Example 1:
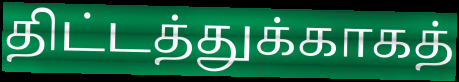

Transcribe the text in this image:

திட்டத்துக்காகத்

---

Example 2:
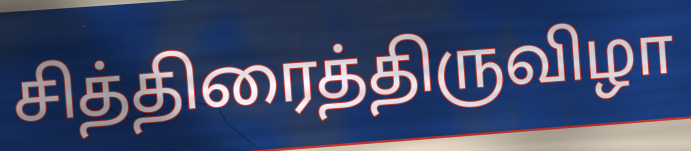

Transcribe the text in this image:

சித்திரைத்திருவிழா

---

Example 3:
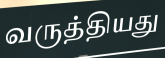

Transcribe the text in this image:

வருத்தியது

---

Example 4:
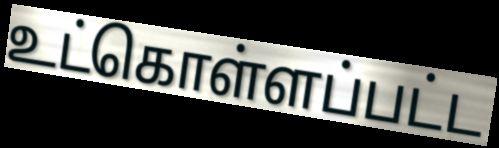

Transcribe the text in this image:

உட்கொள்ளப்பட்ட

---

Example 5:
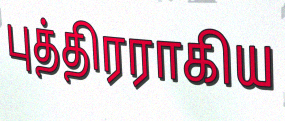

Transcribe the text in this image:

புத்திரராகிய